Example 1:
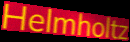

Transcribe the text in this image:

Helmholtz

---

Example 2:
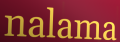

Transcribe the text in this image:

nalama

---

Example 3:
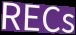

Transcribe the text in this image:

RECs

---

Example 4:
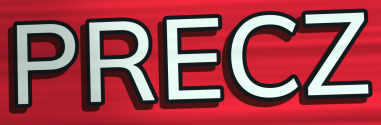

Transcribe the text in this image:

PRECZ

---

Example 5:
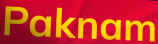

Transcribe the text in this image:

Paknam